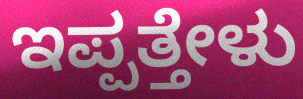
ಇಪ್ಪತ್ತೇಳು